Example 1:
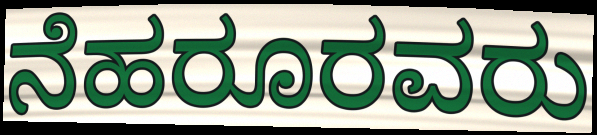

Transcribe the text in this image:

ನೆಹರೂರವರು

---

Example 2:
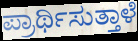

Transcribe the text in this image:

ಪ್ರಾರ್ಥಿಸುತ್ತಾಳೆ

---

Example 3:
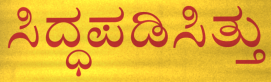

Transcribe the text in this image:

ಸಿದ್ಧಪಡಿಸಿತ್ತು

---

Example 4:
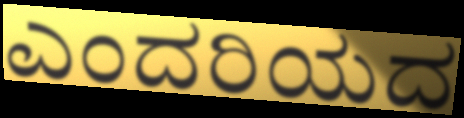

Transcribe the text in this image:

ಎಂದರಿಯದ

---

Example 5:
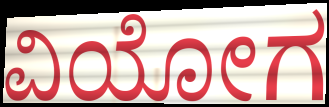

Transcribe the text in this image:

ವಿಯೋಗ